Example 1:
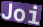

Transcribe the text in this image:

Joi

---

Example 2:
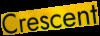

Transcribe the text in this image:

Crescent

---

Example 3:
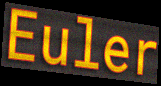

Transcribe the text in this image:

Euler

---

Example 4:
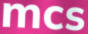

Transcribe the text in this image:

mcs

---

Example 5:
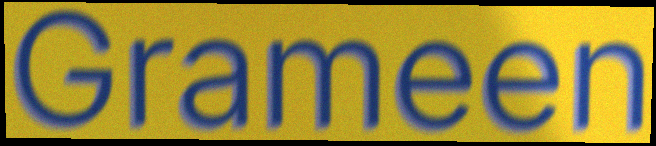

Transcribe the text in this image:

Grameen